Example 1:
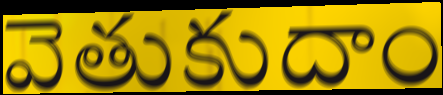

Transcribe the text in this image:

వెతుకుదాం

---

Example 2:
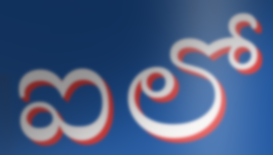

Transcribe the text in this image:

ఐలో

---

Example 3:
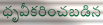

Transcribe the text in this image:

ధృవీకరించబడిన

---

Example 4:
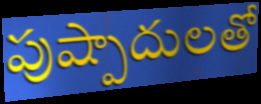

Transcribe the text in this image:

పుష్పాదులతో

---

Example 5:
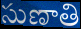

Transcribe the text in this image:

సుణాతి